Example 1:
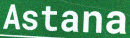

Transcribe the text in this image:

Astana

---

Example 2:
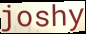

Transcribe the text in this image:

joshy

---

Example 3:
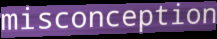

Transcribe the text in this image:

misconception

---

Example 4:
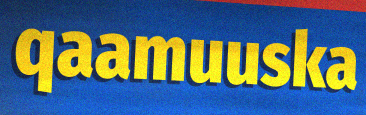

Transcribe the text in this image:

qaamuuska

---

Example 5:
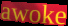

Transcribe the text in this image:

awoke